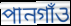
পানগাঁও